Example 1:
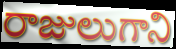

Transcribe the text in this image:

రాజులుగాని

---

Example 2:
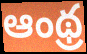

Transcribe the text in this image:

ఆంథ్ర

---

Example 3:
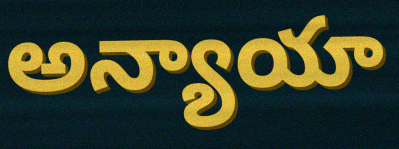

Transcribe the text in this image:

అన్యాయా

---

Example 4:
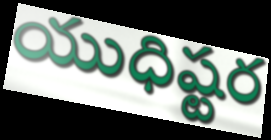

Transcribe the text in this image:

యుధిష్టర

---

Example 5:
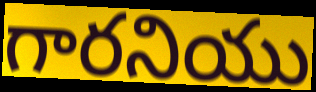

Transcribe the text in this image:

గారనియు